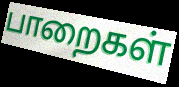
பாறைகள்